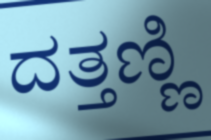
ದತ್ತಣ್ಣಿ